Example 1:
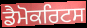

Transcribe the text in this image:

ਡੈਮੋਕਰਿਟਸ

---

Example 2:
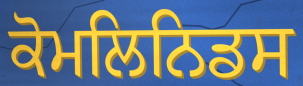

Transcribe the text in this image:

ਕੋਮਲਿਨਿਡਸ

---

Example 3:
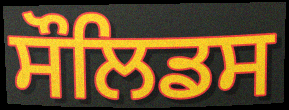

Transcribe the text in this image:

ਸੌਲਿਡਸ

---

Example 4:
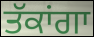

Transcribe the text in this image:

ਤੱਕਾਂਗਾ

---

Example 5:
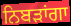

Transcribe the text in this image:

ਨਿਬੜਾਂਗਾ